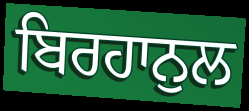
ਬਿਰਹਾਨੁਲ